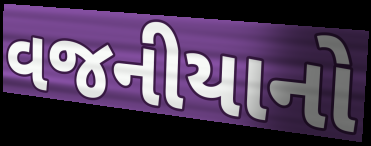
વજનીયાનો